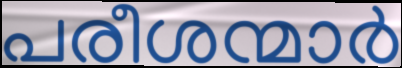
പരീശന്മാർ